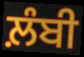
ਲ਼ੰਬੀ